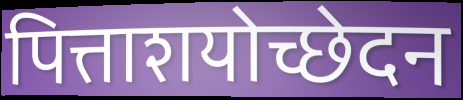
पित्ताशयोच्छेदन